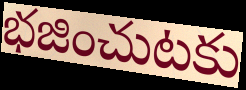
భజించుటకు